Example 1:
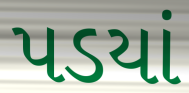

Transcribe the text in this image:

પડયાં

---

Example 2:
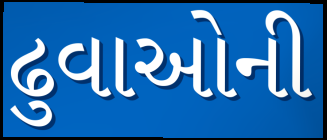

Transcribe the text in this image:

ઢુવાઓની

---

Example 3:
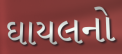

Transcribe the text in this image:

ઘાયલનો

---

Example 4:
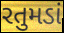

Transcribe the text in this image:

રતુમડાં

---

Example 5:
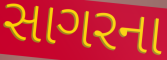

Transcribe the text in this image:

સાગરના